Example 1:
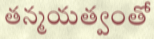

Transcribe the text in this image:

తన్మయత్వంతో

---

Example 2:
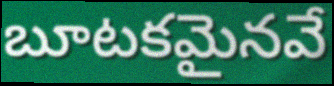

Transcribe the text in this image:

బూటకమైనవే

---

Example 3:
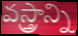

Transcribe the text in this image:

వస్త్రాన్ని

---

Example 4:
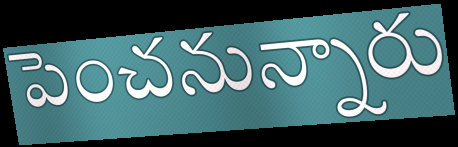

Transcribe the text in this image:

పెంచనున్నారు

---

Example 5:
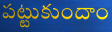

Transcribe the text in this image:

పట్టుకుందాం